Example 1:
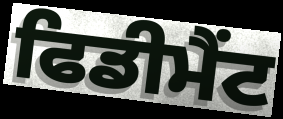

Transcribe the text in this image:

ਫਿਡੀਮੈਂਟ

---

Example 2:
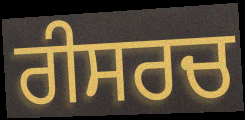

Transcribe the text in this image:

ਰੀਸਰਚ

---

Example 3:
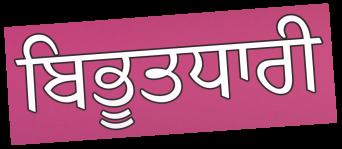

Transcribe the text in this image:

ਬਿਭੂਤਧਾਰੀ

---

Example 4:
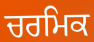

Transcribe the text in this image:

ਚਰਮਿਕ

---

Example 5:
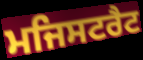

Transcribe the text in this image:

ਮਜਿਸਟਰੈਟ